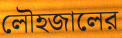
লৌহজালের